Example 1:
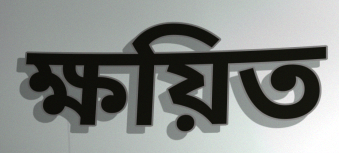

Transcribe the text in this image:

ক্ষয়িত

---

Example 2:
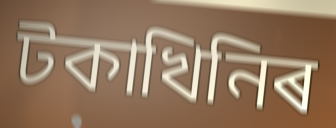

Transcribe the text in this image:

টকাখিনিৰ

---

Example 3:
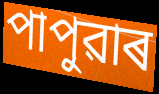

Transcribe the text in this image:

পাপুৱাৰ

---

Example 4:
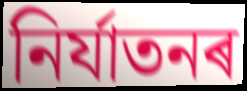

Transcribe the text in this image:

নিৰ্যাতনৰ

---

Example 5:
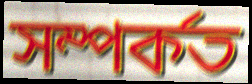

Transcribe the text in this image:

সম্পৰ্কত